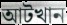
আটখান